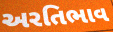
અરતિભાવ